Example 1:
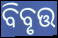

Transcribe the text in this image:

ବିବୃତ୍ତ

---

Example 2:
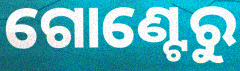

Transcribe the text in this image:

ଗୋଣ୍ଟେରୁ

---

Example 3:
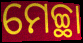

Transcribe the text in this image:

ମେଚ୍ଛା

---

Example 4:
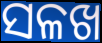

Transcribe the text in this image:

ସଳଖ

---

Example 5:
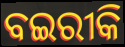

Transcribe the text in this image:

ବଇରୀକି